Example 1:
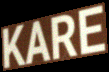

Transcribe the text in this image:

KARE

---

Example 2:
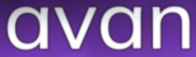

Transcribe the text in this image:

avan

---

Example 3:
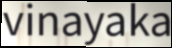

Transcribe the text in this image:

vinayaka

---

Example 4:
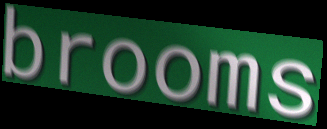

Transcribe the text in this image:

brooms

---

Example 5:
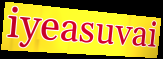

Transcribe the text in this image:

iyeasuvai